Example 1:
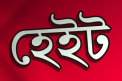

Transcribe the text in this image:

হেইট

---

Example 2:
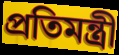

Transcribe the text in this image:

প্রতিমন্ত্রী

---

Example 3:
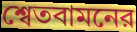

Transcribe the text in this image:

শ্বেতবামনের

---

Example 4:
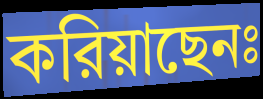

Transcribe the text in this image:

করিয়াছেনঃ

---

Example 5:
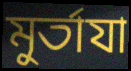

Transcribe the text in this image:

মুর্তাযা